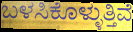
ಬಳಸಿಕೊಳ್ಳುತ್ತಿವೆ